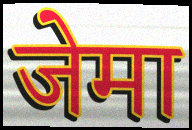
जेमा